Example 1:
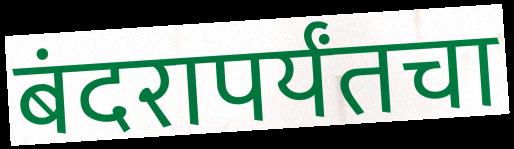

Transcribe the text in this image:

बंदरापर्यंतचा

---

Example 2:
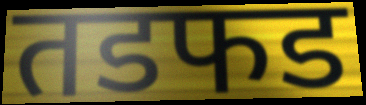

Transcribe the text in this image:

तडफड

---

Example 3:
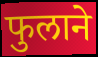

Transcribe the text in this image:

फुलाने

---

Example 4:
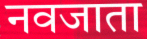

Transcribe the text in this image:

नवजाता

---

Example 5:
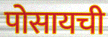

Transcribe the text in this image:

पोसायची